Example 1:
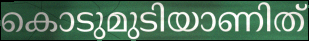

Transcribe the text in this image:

കൊടുമുടിയാണിത്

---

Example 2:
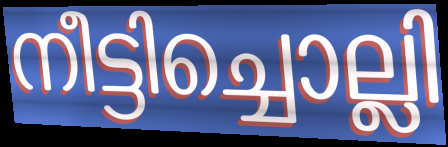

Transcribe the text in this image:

നീട്ടിച്ചൊല്ലി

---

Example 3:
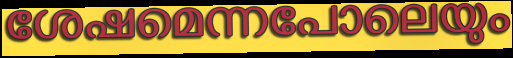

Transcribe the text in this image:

ശേഷമെന്നപോലെയും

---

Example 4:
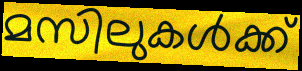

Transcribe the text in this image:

മസിലുകൾക്ക്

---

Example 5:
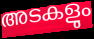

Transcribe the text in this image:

അടകളും